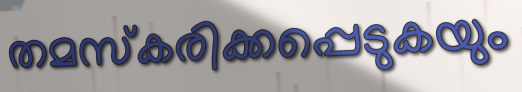
തമസ്കരിക്കപ്പെടുകയും